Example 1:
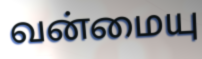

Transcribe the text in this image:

வன்மையு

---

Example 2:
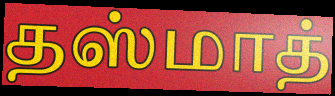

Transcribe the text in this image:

தஸ்மாத்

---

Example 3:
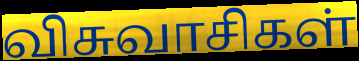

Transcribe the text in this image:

விசுவாசிகள்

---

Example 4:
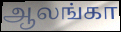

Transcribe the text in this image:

ஆலங்கா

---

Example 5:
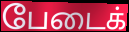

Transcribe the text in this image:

பேடைக்